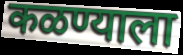
कळण्याला